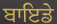
ਬਾਇਡੇ